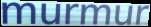
murmur